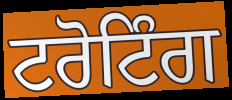
ਟਰੋਟਿੰਗ